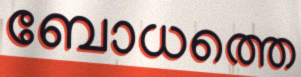
ബോധത്തെ